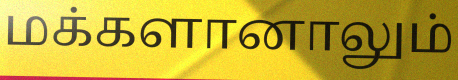
மக்களானாலும்